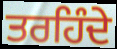
ਤਰਹਿੰਦੇ